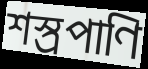
শস্ত্রপাণি